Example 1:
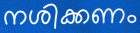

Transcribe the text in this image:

നശിക്കണം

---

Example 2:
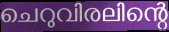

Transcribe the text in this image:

ചെറുവിരലിന്റെ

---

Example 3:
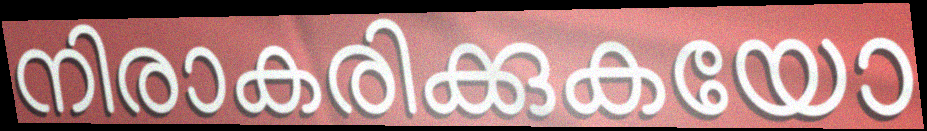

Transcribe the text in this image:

നിരാകരിക്കുകയോ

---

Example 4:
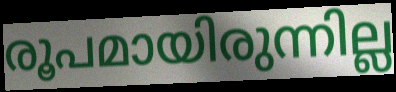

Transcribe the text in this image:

രൂപമായിരുന്നില്ല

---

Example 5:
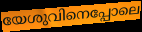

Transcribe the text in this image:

യേശുവിനെപ്പോലെ